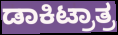
ಡಾಕಿಟ್ರಾತ್ರ